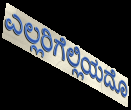
ಎಲ್ಲರಿಗೆಲ್ಲಿಯದೊ